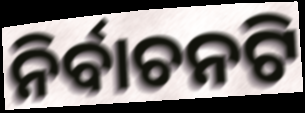
ନିର୍ବାଚନଟି